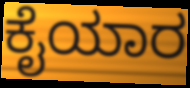
ಕೈಯಾರ